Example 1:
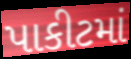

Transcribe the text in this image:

પાકીટમાં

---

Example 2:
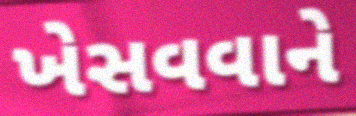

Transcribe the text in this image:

ખેસવવાને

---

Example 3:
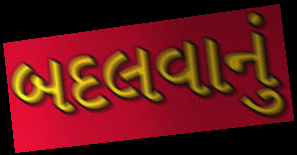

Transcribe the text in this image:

બદલવાનું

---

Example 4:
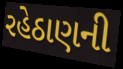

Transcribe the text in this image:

રહેઠાણની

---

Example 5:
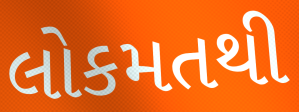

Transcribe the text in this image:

લોકમતથી